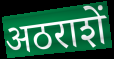
अठराशें